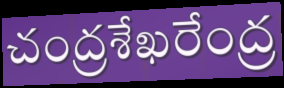
చంద్రశేఖరేంద్ర